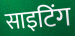
साइटिंग